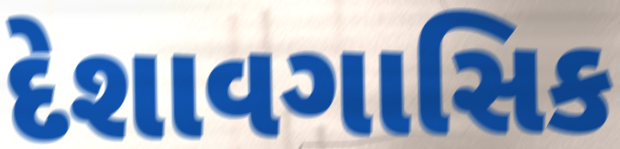
દેશાવગાસિક